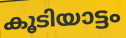
കൂടിയാട്ടം